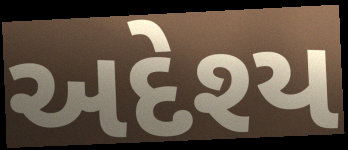
અદેશ્ય